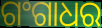
ଗଂଗାଧର